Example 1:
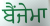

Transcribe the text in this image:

ਬੈਂਜੇਮਾ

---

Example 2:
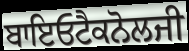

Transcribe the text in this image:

ਬਾਇਓਟੈਕਨੋਲਜੀ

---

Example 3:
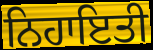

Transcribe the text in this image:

ਨਿਹਾਇਤੀ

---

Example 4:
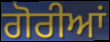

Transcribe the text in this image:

ਗੋਰੀਆਂ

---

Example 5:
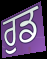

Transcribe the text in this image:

ਰੁਡ